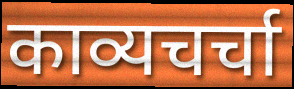
काव्यचर्चा